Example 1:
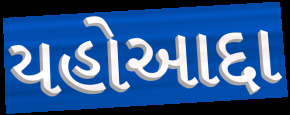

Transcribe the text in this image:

યહોઆદ્દા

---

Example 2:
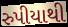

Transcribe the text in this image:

રુપીયાથી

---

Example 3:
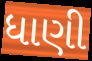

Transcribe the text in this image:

ધાણી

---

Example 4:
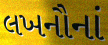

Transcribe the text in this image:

લખનૌનાં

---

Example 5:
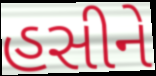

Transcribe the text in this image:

હસીને